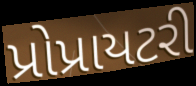
પ્રોપ્રાયટરી